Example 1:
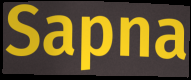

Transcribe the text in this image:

Sapna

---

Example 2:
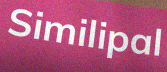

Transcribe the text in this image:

Similipal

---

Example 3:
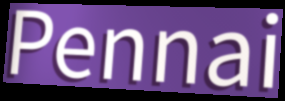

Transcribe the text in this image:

Pennai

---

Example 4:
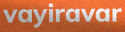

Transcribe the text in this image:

vayiravar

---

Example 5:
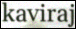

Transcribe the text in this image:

kaviraj